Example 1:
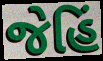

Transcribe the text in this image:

જેહિં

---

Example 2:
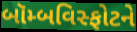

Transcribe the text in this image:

બૉમ્બવિસ્ફોટને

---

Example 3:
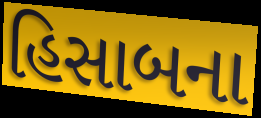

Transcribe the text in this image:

હિસાબના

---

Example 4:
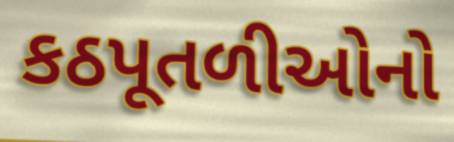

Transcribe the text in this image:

કઠપૂતળીઓનો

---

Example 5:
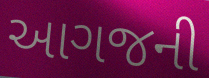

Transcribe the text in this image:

આગજની